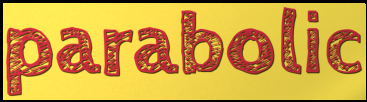
parabolic